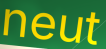
neut